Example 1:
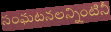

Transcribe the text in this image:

సంఘటనలన్నింటినీ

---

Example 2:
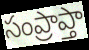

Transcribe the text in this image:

సంప్రాప్తా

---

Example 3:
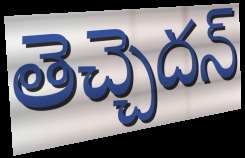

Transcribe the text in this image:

తెచ్చెదన్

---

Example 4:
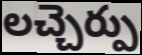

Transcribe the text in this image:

లచ్చెర్పు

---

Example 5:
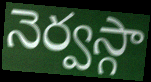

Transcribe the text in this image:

నెర్వస్గా